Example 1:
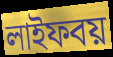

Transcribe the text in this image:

লাইফবয়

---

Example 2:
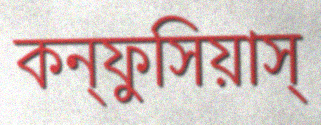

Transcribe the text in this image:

কন্ফুসিয়াস্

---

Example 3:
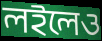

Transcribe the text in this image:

লইলেও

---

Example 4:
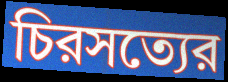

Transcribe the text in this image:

চিরসত্যের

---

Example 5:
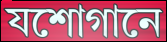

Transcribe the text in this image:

যশোগানে